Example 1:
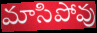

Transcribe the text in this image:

మాసిపోవు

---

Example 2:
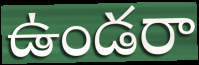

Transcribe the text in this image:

ఉండరా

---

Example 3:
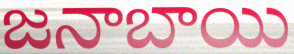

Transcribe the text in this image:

జనాబాయి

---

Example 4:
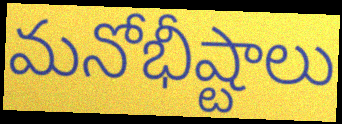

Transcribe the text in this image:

మనోభీష్టాలు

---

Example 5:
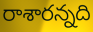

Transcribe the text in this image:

రాశారన్నది